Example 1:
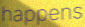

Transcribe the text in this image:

happens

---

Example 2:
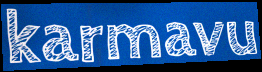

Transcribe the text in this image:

karmavu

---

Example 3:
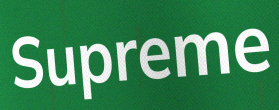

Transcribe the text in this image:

Supreme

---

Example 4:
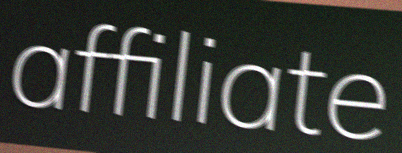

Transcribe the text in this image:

affiliate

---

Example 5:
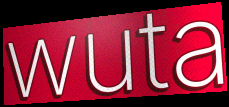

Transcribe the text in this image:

wuta